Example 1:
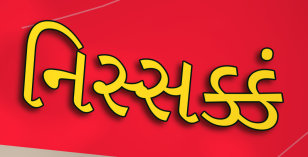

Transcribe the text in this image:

નિસ્સક્કં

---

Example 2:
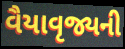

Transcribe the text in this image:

વૈયાવૃજ્યની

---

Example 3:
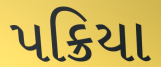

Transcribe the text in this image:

પક્રિયા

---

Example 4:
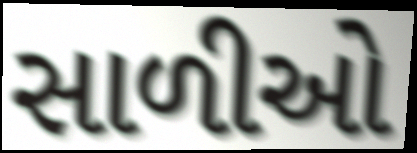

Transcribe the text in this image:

સાળીઓ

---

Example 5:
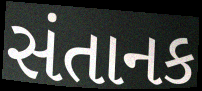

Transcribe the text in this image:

સંતાનક